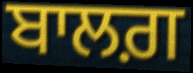
ਬਾਲਗ਼